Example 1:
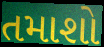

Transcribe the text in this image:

તમાશો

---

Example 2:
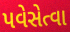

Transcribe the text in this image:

પવેસેત્વા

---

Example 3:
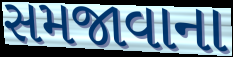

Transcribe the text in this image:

સમજાવાના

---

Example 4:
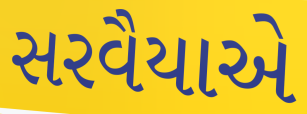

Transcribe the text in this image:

સરવૈયાએ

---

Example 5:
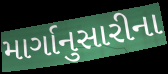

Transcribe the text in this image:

માર્ગાનુસારીના